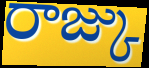
రాజ్కు